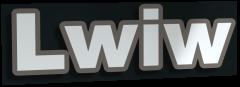
Lwiw